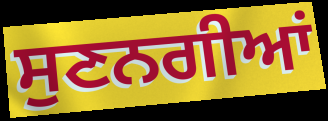
ਸੁਣਨਗੀਆਂ